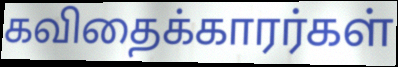
கவிதைக்காரர்கள்